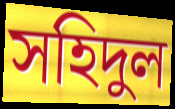
সহিদুল